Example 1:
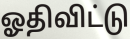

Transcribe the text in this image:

ஓதிவிட்டு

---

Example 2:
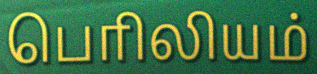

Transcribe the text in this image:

பெரிலியம்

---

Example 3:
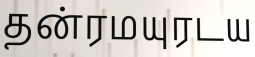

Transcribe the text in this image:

தன்ரமயுரடய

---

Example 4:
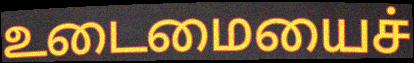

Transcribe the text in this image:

உடைமையைச்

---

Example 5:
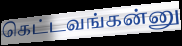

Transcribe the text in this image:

கெட்டவங்கன்னு